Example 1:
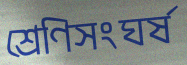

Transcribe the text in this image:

শ্রেণিসংঘর্ষ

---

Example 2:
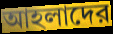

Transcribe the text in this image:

আহলাদের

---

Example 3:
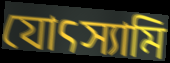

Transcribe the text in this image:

যোৎস্যামি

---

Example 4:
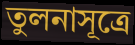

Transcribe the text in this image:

তুলনাসূত্রে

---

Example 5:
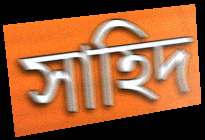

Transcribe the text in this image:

সাহিদ